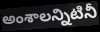
అంశాలన్నిటినీ